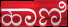
ಹಾಣಿ